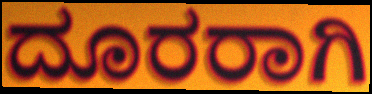
ದೂರರಾಗಿ